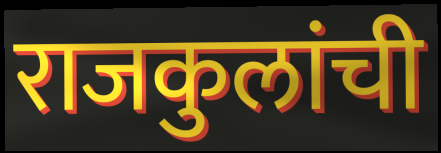
राजकुलांची